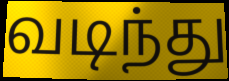
வடிந்து